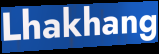
Lhakhang